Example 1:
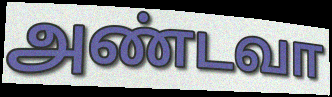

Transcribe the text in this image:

அண்டவா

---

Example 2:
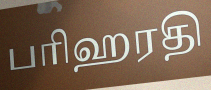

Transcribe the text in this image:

பரிஹரதி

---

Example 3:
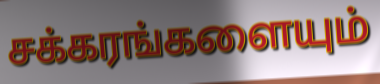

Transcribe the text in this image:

சக்கரங்களையும்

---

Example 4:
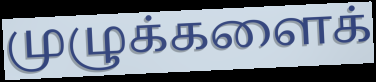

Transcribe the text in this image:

முழுக்களைக்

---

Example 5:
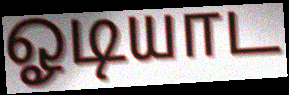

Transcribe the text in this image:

ஓடியாட